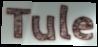
Tule